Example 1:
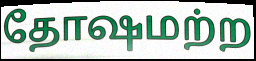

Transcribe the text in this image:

தோஷமற்ற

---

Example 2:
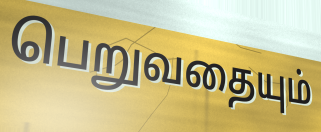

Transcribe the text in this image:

பெறுவதையும்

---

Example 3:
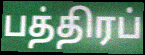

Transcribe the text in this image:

பத்திரப்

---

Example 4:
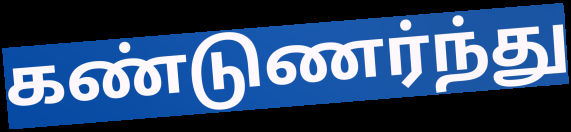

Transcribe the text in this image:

கண்டுணர்ந்து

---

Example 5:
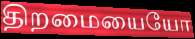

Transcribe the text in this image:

திறமையையோ